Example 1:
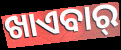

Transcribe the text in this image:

ଖାଏବାର୍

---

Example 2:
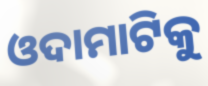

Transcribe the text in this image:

ଓଦାମାଟିକୁ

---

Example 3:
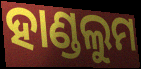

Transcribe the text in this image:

ହାଣ୍ଡଲୁମ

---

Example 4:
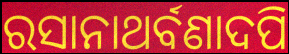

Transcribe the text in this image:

ରସାନାଥର୍ବଣାଦପି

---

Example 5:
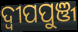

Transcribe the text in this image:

ଦ୍ଵୀପପୁଞ୍ଜ